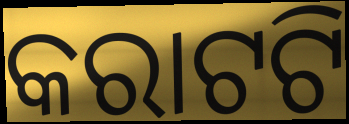
କରାଟଟି